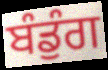
ਬੰਡੁੰਗ